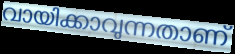
വായിക്കാവുന്നതാണ്